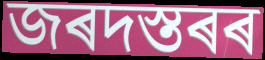
জৰদস্তৰৰ